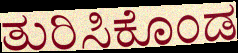
ತುರಿಸಿಕೊಂಡ